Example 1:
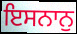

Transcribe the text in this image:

ਇਸਨਾਨੁ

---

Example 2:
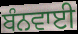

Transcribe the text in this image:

ਬੰਨਵਾਈ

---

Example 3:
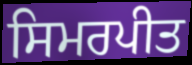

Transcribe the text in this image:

ਸਿਮਰਪੀਤ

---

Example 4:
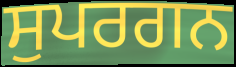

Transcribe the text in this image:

ਸੁਪਰਗਨ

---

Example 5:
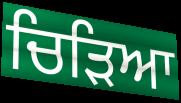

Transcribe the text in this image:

ਚਿੜਿਆ